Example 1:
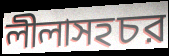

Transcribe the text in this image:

লীলাসহচর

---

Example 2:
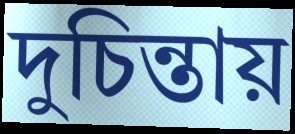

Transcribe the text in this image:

দুচিন্তায়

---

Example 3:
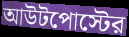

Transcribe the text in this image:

আউটপোস্টের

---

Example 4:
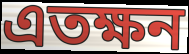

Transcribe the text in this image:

এতক্ষন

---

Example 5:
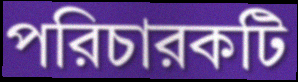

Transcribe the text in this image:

পরিচারকটি